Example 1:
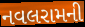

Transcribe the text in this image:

નવલરામની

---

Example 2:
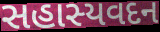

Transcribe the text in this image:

સહાસ્યવદન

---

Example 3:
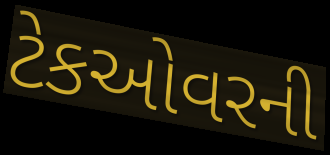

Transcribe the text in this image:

ટેકઓવરની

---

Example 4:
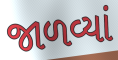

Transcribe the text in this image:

જાળવ્યાં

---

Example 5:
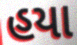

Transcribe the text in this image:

હયા